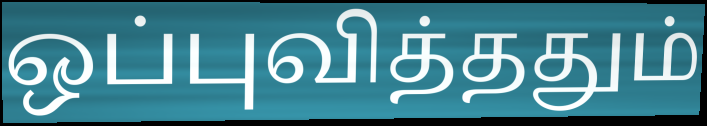
ஒப்புவித்ததும்